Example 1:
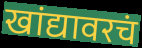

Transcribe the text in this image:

खांद्यावरचं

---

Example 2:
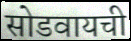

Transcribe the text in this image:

सोडवायची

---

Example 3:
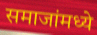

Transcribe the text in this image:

समाजांमध्ये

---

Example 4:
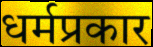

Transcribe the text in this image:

धर्मप्रकार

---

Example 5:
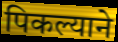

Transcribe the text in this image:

पिकल्याने